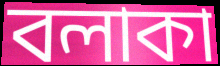
বলাকা